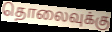
தொலைவுக்கு